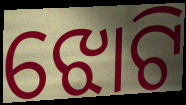
ଝୋଟି